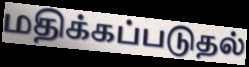
மதிக்கப்படுதல்